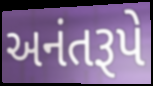
અનંતરૂપે